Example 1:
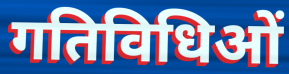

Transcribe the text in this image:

गतिविधिओं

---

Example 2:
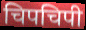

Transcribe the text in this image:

चिपचिपी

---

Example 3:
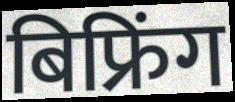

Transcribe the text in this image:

बिफ्रिंग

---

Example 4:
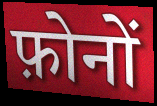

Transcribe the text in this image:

फ़ोनों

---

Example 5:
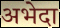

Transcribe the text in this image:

अभेदा